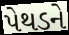
પેથડને